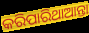
କରିପାରିଥାଆନ୍ତା